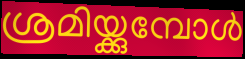
ശ്രമിയ്ക്കുമ്പോൾ